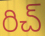
రిచ్